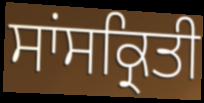
ਸਾਂਸਕ੍ਰਿਤੀ